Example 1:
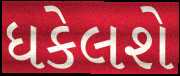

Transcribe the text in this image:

ધકેલશે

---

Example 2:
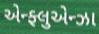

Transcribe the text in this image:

એન્ફ્લુએન્ઝા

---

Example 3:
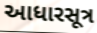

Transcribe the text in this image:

આધારસૂત્ર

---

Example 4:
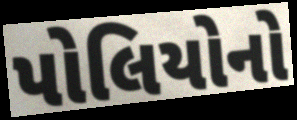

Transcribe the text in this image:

પોલિયોનો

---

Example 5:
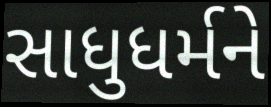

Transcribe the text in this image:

સાધુધર્મને